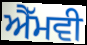
ਐੱਮਵੀ